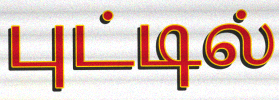
புட்டில்